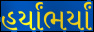
હર્યાંભર્યાં